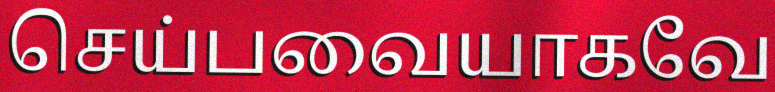
செய்பவையாகவே